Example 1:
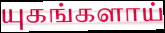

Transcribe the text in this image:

யுகங்களாய்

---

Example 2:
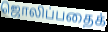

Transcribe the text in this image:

ஜொலிப்பதைக்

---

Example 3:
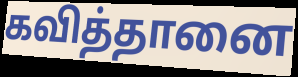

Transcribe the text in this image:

கவித்தானை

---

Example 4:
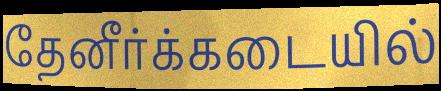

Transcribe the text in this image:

தேனீர்க்கடையில்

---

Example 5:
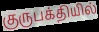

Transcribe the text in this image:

குருபக்தியில்